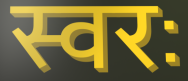
स्वरः